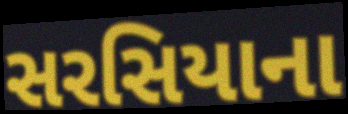
સરસિયાના